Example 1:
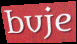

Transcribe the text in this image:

buje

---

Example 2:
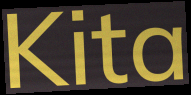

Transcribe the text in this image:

Kita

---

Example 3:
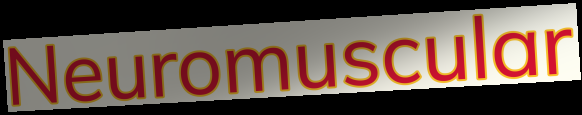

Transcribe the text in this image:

Neuromuscular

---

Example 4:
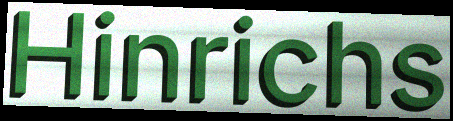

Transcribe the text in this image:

Hinrichs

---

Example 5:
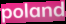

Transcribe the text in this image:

poland